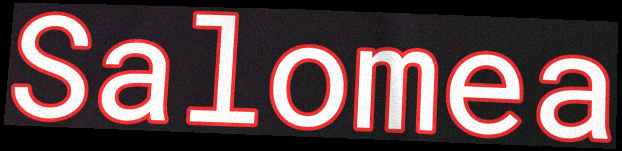
Salomea